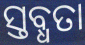
ସ୍ତବ୍ଧତା